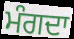
ਮੰਗਦਾ